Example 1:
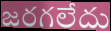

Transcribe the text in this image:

జరగలేదు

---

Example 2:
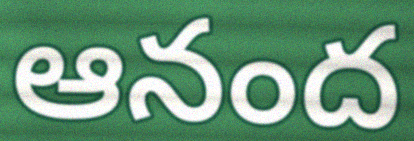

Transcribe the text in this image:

ఆనంద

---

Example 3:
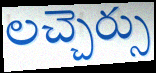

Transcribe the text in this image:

లచ్చెర్సు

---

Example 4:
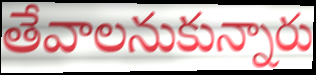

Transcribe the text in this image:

తేవాలనుకున్నారు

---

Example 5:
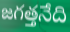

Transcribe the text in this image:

జగత్తనేది